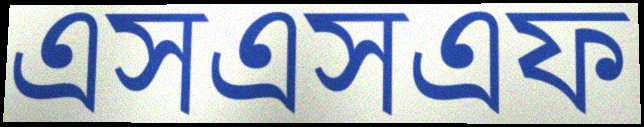
এসএসএফ